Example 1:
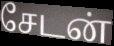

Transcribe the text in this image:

சேடன்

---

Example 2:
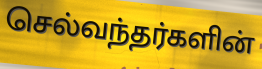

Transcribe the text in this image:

செல்வந்தர்களின்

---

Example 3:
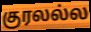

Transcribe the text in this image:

குரலல்ல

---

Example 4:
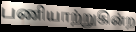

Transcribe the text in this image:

பணியாற்றுகின்ற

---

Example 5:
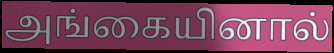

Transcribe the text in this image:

அங்கையினால்